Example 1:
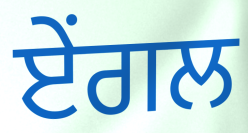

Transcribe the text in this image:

ਏਂਗਲ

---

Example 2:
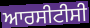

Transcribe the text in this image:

ਆਰਸੀਟੀਸੀ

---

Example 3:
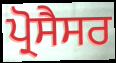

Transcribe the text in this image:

ਪ੍ਰੋਸੈਸਰ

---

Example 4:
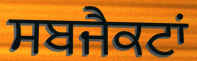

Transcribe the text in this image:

ਸਬਜੈਕਟਾਂ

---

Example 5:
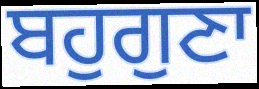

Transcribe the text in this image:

ਬਹੁਗੁਣਾ